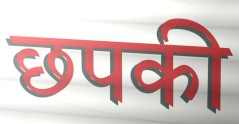
छपकी